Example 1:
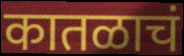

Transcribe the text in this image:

कातळाचं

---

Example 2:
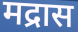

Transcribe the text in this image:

मद्रास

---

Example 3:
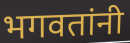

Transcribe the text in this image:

भगवतांनी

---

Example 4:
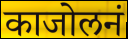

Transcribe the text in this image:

काजोलनं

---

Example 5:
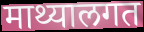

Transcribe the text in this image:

माथ्यालगत